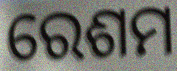
ରେଶମ